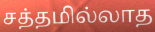
சத்தமில்லாத